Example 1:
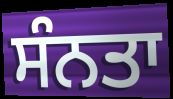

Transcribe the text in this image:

ਸੰਨਤਾ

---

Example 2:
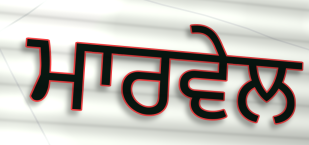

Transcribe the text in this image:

ਮਾਰਵੇਲ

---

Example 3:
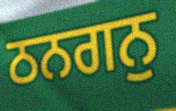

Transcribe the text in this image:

ਠਨਗਨੁ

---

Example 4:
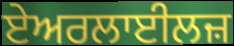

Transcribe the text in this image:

ਏਅਰਲਾਈਲਜ਼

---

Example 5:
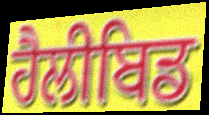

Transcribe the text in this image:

ਹੈਲੀਬਿਡ